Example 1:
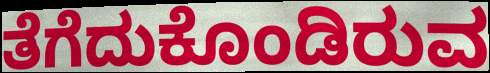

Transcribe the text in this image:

ತೆಗೆದುಕೊಂಡಿರುವ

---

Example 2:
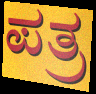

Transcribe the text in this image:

ಪತ್ರ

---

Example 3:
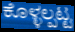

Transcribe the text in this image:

ಕೊಳ್ಳಲ್ಪಟ್ಟ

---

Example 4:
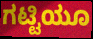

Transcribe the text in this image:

ಗಟ್ಟಿಯೂ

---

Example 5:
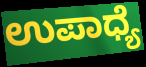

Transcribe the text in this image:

ಉಪಾಧ್ಯೆ